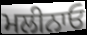
ਮਲੀਨਾਓ